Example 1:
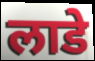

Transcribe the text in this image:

लाडे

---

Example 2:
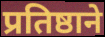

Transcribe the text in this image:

प्रतिष्ठाने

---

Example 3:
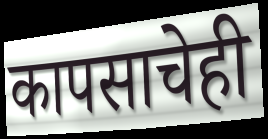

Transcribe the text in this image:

कापसाचेही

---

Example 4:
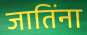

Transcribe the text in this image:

जातिंना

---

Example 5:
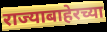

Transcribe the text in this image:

राज्याबाहेरच्या